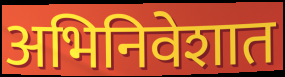
अभिनिवेशात